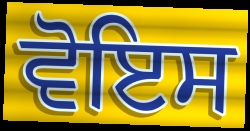
ਵੋਇਸ